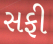
સફી